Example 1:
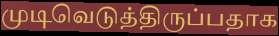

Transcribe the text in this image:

முடிவெடுத்திருப்பதாக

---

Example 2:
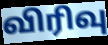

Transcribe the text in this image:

விரிவு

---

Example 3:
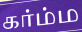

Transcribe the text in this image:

கர்ம்ம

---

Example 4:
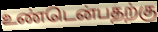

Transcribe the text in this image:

உண்டென்பதற்கு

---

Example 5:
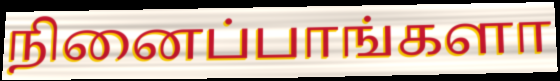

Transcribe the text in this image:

நினைப்பாங்களா